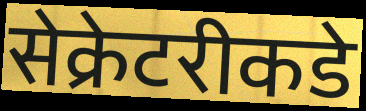
सेक्रेटरीकडे